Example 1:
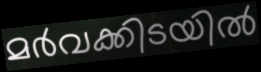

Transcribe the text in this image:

മർവക്കിടയിൽ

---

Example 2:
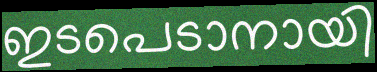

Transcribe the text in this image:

ഇടപെടാനായി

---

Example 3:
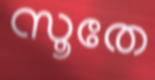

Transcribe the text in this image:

സൂതേ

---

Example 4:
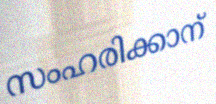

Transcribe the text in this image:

സംഹരിക്കാന്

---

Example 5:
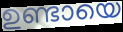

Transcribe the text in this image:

ഉണ്ടായെ